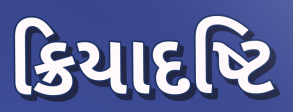
ક્રિયાદષ્ટિ